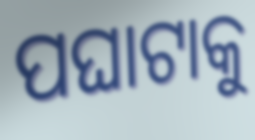
ପଘାଟାକୁ